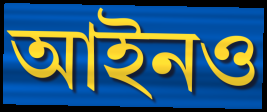
আইনও